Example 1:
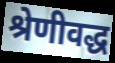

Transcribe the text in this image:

श्रेणीवद्ध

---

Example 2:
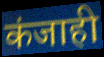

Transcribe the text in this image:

कंजाही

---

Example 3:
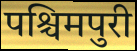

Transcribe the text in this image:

पश्चिमपुरी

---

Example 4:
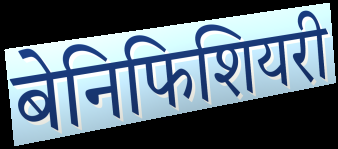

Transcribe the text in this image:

बेनिफिशियरी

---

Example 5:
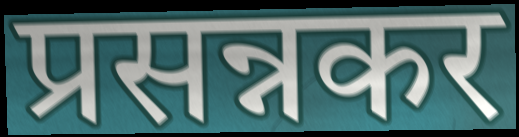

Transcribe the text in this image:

प्रसन्नकर